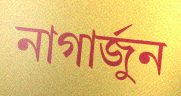
নাগাৰ্জুন